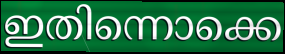
ഇതിന്നൊക്കെ